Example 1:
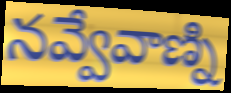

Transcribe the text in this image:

నవ్వేవాణ్ని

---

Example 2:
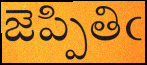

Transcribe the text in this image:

జెప్పితిఁ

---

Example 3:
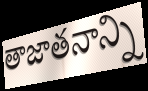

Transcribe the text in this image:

తాజాతనాన్ని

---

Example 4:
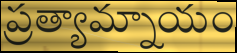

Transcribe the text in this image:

ప్రత్యామ్నాయం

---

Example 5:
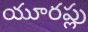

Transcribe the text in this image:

యూరప్లు